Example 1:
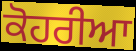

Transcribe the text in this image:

ਕੋਹਰੀਆ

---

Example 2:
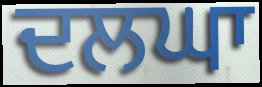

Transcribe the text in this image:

ਦਲਘਾ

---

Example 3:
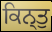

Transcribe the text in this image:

ਕਿਨ੍ਤੁ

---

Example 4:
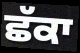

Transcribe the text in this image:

ਛੱਕਾ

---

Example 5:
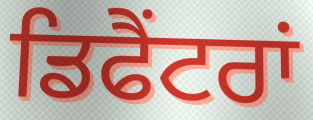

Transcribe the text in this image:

ਡਿਫੈਂਟਰਾਂ